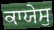
ਕਾਯੇਸੁ